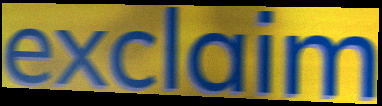
exclaim